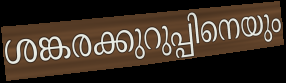
ശങ്കരക്കുറുപ്പിനെയും